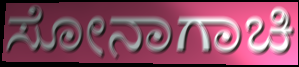
ಸೋನಾಗಾಚಿ